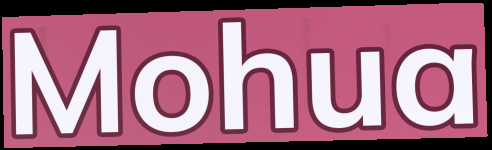
Mohua